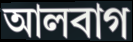
আলবাগ